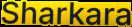
Sharkara